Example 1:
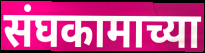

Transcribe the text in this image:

संघकामाच्या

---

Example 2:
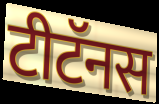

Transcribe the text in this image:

टीटॅनस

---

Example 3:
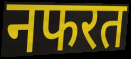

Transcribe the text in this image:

नफरत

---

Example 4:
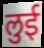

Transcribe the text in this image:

लुई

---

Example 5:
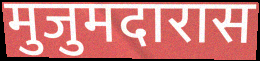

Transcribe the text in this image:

मुजुमदारास